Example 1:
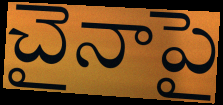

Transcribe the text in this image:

చైనాపై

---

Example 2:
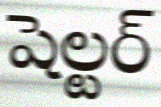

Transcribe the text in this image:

షెల్టర్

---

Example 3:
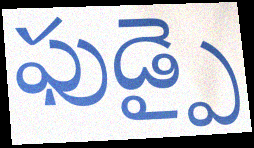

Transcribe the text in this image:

ఫుడ్పై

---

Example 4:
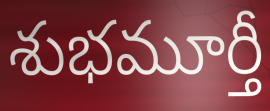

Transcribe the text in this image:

శుభమూర్తీ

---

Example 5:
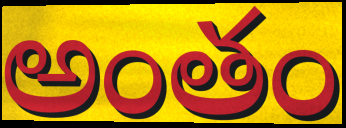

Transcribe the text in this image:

అంతం